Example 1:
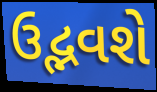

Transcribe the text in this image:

ઉદ્ભવશે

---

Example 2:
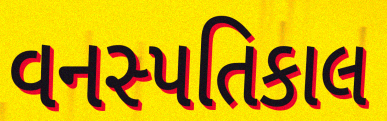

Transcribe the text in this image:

વનસ્પતિકાલ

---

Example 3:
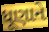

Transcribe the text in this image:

ધૂણાને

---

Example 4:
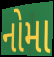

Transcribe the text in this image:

નોમા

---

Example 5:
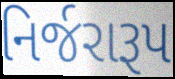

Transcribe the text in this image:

નિર્જરારૂપ